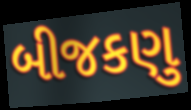
બીજકણુ